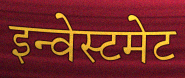
इन्वेस्टमेट